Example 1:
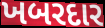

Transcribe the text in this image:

ખબરદાર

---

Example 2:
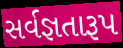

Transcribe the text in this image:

સર્વજ્ઞતારૂપ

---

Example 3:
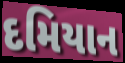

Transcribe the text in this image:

દમિયાન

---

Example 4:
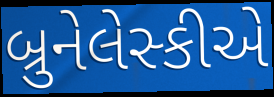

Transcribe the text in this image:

બ્રુનેલેસ્કીએ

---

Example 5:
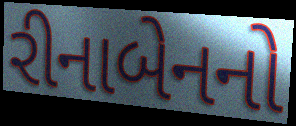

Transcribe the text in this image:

રીનાબેનનો